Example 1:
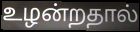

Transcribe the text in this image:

உழன்றதால்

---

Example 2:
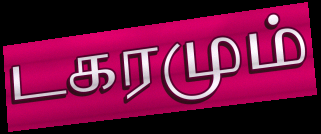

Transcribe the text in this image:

டகரமும்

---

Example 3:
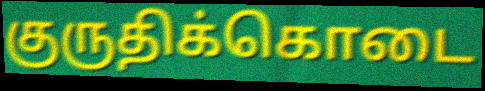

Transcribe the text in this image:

குருதிக்கொடை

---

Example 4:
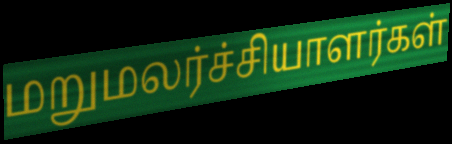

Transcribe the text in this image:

மறுமலர்ச்சியாளர்கள்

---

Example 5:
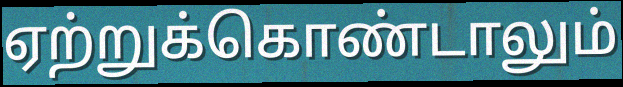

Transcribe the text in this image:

ஏற்றுக்கொண்டாலும்